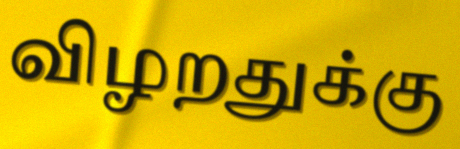
விழறதுக்கு